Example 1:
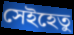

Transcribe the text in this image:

সেইহেতু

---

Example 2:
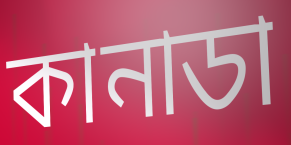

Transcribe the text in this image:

কানাডা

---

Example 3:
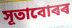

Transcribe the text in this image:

সূতাবোৰৰ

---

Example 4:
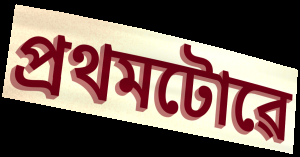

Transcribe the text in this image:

প্ৰথমটোৱে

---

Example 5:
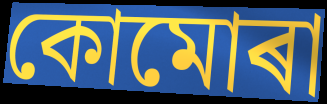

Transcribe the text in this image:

কোমোৰা